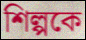
শিল্পকে